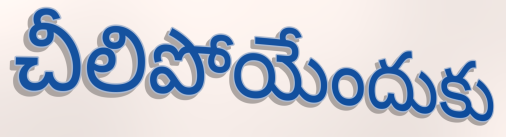
చీలిపోయేందుకు